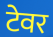
टेवर